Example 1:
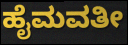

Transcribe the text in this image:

ಹೈಮವತೀ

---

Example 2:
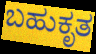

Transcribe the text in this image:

ಬಹುಕೃತ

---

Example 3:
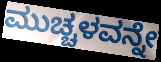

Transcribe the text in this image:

ಮುಚ್ಚಳವನ್ನೇ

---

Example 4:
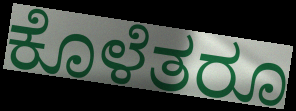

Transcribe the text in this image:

ಕೊಳೆತರೂ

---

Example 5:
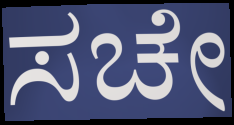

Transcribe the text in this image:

ಸಚೇ